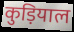
कुड़ियाल